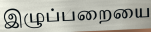
இழுப்பறையை